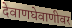
देवाणघेवाणीवर